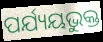
ପର୍ଯ୍ୟୟଭୁକ୍ତ